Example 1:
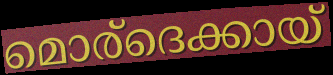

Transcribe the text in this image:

മൊര്ദെക്കായ്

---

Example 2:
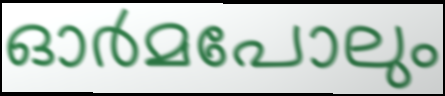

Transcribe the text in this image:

ഓർമപോലും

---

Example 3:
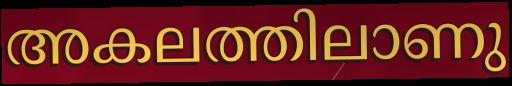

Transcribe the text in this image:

അകലത്തിലാണു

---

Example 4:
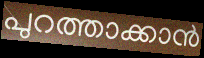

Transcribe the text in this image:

പുറത്താക്കാൻ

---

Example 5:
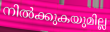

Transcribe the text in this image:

നിൽക്കുകയുമില്ല